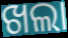
ଖଲା